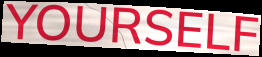
YOURSELF